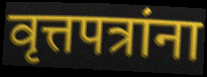
वृत्तपत्रांना